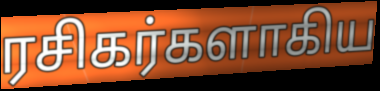
ரசிகர்களாகிய